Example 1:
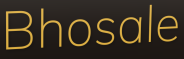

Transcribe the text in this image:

Bhosale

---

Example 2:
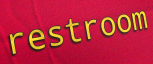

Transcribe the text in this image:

restroom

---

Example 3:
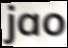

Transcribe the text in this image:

jao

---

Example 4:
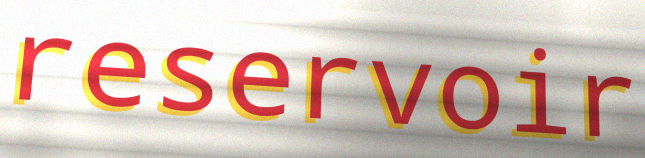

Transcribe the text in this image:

reservoir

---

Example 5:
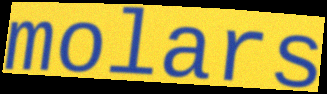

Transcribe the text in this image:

molars